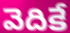
వెదికే